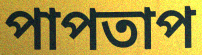
পাপতাপ